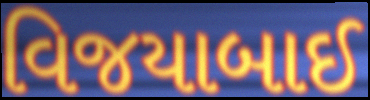
વિજયાબાઈ